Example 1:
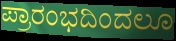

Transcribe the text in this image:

ಪ್ರಾರಂಭದಿಂದಲೂ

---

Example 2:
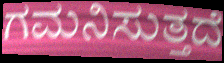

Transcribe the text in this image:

ಗಮನಿಸುತ್ತದೆ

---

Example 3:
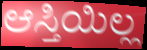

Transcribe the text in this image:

ಆಸ್ತಿಯಿಲ್ಲ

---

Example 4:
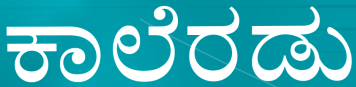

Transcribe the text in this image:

ಕಾಲೆರಡು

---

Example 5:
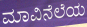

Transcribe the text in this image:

ಮಾವಿನೆಲೆಯ